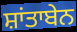
ਸ਼ਾਂਤਾਬੇਨ